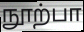
நூற்பா